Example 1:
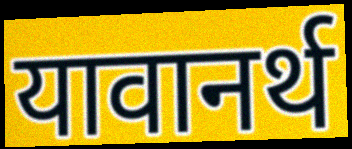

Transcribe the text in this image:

यावानर्थ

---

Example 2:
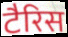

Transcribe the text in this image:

टैरिस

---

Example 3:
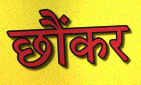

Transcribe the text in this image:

छौंकर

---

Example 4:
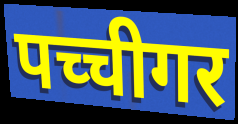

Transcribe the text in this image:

पच्चीगर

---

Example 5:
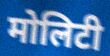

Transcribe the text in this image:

मोलिटी